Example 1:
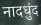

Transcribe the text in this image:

नादधुंद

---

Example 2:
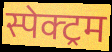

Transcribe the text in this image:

स्पेक्ट्रम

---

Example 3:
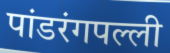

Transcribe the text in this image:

पांडरंगपल्ली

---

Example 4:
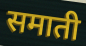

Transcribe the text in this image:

समाती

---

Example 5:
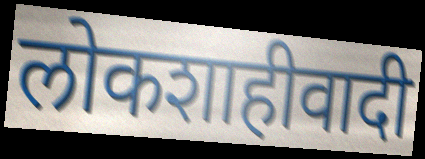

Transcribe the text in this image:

लोकशाहीवादी